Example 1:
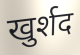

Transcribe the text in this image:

खुर्शद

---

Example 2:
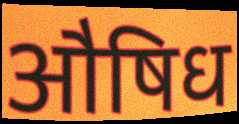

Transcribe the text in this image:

औषिध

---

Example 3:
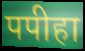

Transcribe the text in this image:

पपीहा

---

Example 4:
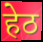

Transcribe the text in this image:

हेठ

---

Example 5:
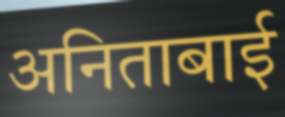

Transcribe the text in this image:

अनिताबाई